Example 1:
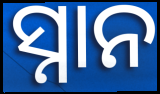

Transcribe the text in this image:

ସ୍ନାନ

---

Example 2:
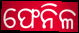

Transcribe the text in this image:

ଫେନିଳ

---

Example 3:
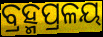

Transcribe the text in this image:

ବ୍ରହ୍ମପ୍ରଳୟ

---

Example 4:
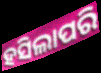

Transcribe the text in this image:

ହସିଲାପରି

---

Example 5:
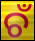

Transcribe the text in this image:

ଚଁ